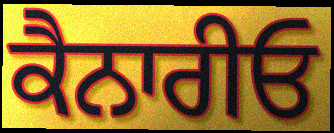
ਕੈਨਾਰੀਓ